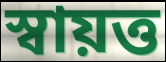
স্বায়ত্ত